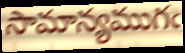
సామాన్యముగఁ